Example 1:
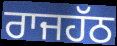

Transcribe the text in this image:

ਰਾਜਹੱਠ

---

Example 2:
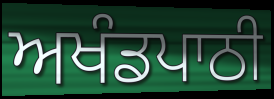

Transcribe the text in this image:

ਅਖੰਡਪਾਠੀ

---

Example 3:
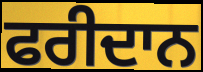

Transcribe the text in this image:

ਫਰੀਦਾਨ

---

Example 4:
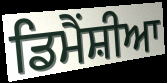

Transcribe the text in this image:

ਡਿਮੈਂਸ਼ੀਆ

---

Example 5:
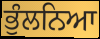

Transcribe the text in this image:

ਭੁੰਲਨਿਆ